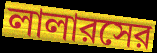
লালারসের